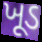
ખૂડ